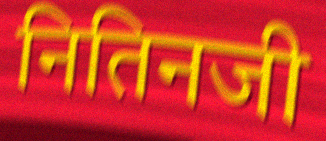
नितिनजी